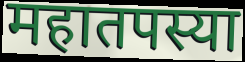
महातपस्या